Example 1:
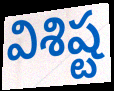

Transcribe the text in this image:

విశిష్ట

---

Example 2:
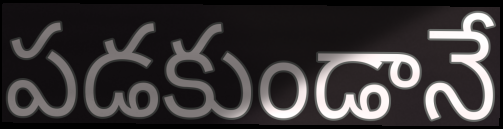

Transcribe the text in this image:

పడకుండానే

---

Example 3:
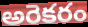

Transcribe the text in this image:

అరెకరం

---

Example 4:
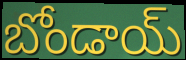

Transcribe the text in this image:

బోండాయ్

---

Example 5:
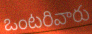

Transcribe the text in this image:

ఒంటరివారు